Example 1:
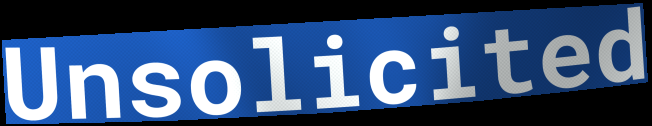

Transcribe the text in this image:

Unsolicited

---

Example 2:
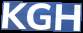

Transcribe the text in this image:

KGH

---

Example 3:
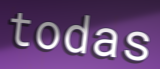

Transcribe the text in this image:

todas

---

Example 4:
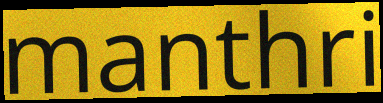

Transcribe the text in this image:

manthri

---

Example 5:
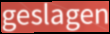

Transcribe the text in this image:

geslagen